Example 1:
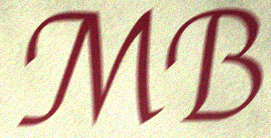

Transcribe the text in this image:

MB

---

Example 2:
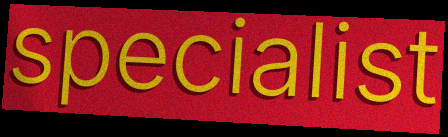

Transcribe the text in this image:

specialist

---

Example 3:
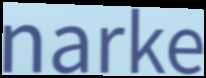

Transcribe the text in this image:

narke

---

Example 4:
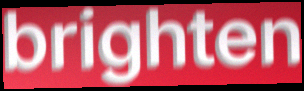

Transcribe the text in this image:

brighten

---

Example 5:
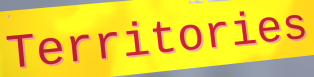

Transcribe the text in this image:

Territories